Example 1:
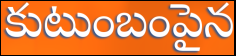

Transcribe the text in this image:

కుటుంబంపైన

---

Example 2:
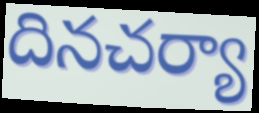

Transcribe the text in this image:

దినచర్యా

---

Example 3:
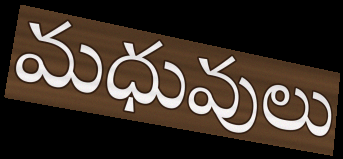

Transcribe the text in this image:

మధువులు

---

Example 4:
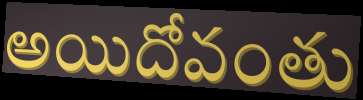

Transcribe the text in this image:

అయిదోవంతు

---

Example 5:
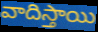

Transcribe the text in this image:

వాదిస్తాయి